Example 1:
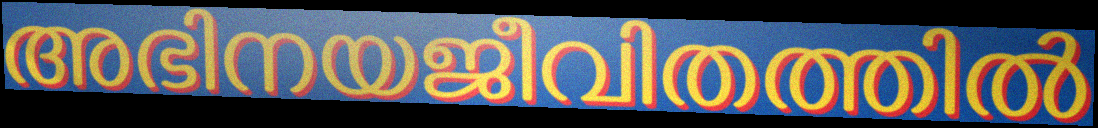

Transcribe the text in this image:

അഭിനയജീവിതത്തിൽ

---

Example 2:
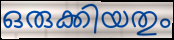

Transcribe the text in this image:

ഒരുക്കിയതും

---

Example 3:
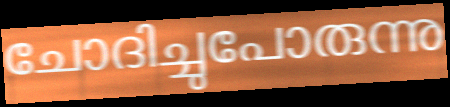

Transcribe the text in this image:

ചോദിച്ചുപോരുന്നു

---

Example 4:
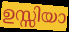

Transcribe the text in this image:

ഉസ്സിയാ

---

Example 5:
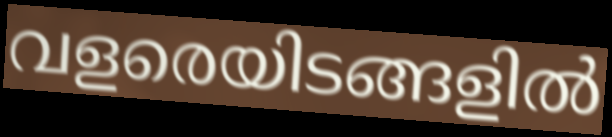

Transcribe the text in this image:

വളരെയിടങ്ങളിൽ